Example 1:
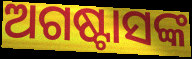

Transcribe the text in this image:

ଅଗଷ୍ଟାସଙ୍କ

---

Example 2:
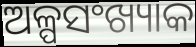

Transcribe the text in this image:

ଅଳ୍ପସଂଖ୍ୟାକ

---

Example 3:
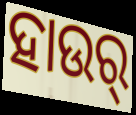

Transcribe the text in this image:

ହାଉର୍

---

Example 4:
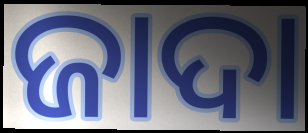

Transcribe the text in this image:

ଜାଦା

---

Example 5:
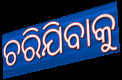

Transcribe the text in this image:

ଚରିଯିବାକୁ